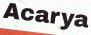
Acarya